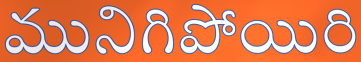
మునిగిపోయిరి